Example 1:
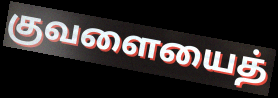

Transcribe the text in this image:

குவளையைத்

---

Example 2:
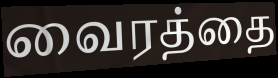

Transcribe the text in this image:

வைரத்தை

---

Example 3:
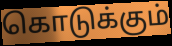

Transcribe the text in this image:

கொடுக்கும்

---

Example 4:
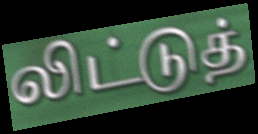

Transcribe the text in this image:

லிட்டுத்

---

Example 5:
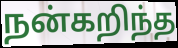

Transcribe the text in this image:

நன்கறிந்த